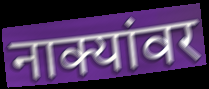
नाक्यांवर